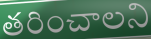
తరించాలని